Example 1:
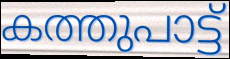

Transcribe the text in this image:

കത്തുപാട്ട്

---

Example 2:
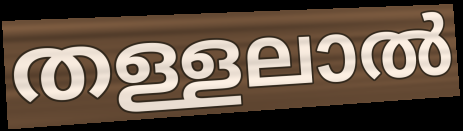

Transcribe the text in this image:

തള്ളലാൽ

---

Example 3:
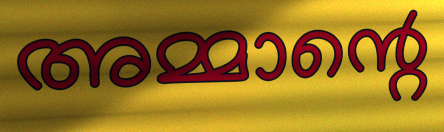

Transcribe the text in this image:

അമ്മാന്റെ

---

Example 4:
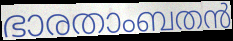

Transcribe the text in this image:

ഭാരതാംബതൻ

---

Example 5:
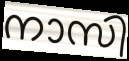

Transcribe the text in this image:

നാസി